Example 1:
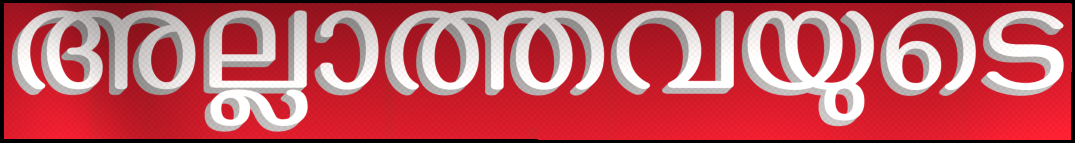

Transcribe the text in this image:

അല്ലാത്തവയുടെ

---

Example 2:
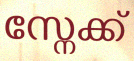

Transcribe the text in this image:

സ്നേക്ക്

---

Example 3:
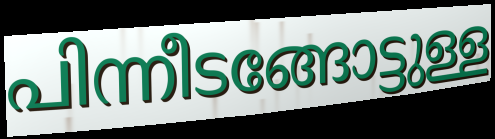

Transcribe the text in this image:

പിന്നീടങ്ങോട്ടുള്ള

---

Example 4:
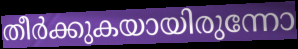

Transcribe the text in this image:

തീർക്കുകയായിരുന്നോ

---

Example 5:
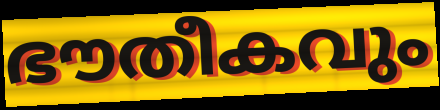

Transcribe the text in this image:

ഭൗതീകവും